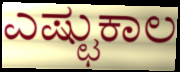
ಎಷ್ಟುಕಾಲ